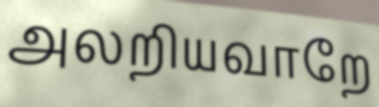
அலறியவாறே